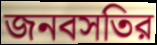
জনবসতির